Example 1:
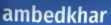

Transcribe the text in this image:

ambedkhar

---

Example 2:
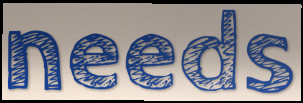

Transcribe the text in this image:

needs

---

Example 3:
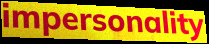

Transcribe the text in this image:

impersonality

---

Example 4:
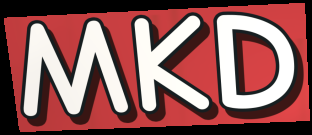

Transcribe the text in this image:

MKD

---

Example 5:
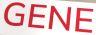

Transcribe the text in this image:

GENE